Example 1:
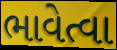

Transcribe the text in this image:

ભાવેત્વા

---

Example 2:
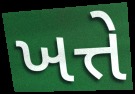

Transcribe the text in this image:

ખત્તે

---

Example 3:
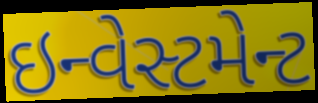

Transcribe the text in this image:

ઇન્વેસ્ટમેન્ટ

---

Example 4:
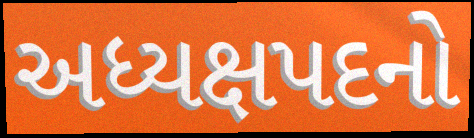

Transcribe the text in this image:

અધ્યક્ષપદનો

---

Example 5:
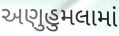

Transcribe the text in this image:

અણુહુમલામાં